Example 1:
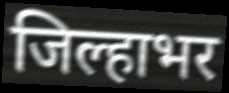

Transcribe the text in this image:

जिल्हाभर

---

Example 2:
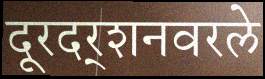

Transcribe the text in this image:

दूरदर्शनवरले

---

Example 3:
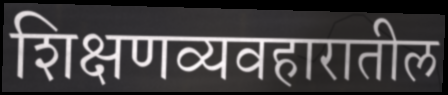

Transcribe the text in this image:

शिक्षणव्यवहारातील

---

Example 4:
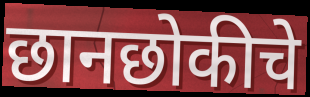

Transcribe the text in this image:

छानछोकीचे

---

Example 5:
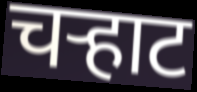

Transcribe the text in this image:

चऱ्हाट